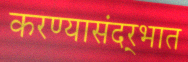
करण्यासंदर्भात